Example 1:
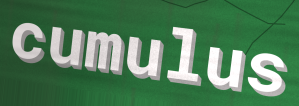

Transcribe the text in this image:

cumulus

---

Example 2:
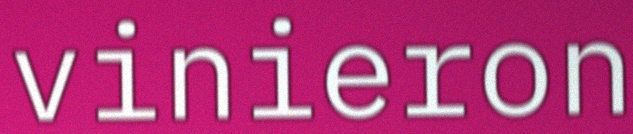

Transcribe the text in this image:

vinieron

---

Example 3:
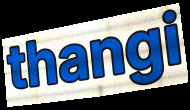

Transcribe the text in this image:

thangi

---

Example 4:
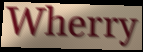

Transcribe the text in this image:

Wherry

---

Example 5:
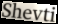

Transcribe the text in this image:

Shevti